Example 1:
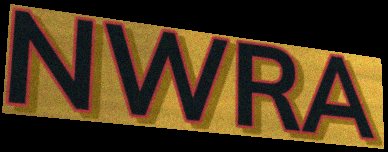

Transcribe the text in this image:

NWRA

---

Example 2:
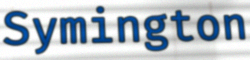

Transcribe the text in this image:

Symington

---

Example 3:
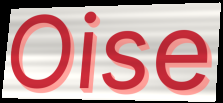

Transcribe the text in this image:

Oise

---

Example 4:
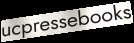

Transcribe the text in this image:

ucpressebooks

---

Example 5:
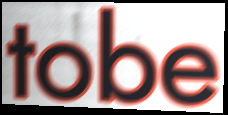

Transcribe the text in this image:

tobe